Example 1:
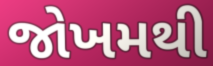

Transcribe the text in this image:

જોખમથી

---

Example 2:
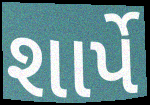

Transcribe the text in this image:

શાર્પે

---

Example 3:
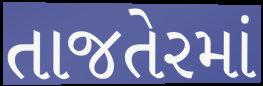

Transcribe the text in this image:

તાજતેરમાં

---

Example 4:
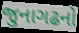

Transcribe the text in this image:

જુનાગઢનો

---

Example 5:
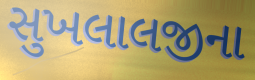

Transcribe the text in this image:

સુખલાલજીના